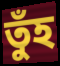
তুঁহ